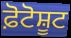
ਫ਼ੋਟੋਸ਼ੂਟ